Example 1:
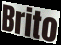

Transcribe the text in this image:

Brito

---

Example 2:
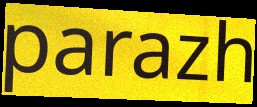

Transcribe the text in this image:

parazh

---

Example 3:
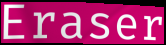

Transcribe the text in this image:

Eraser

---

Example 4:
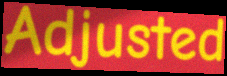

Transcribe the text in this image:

Adjusted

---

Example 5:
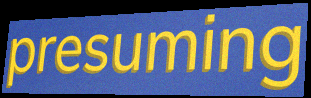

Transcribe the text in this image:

presuming